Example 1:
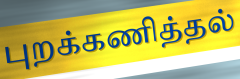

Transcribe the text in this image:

புறக்கணித்தல்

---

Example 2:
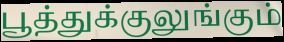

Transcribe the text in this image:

பூத்துக்குலுங்கும்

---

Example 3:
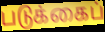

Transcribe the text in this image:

படுக்கைப்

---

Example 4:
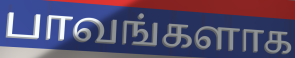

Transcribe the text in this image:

பாவங்களாக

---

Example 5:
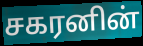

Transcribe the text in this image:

சகரனின்